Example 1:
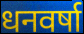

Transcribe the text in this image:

धनवर्षा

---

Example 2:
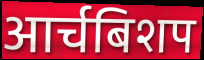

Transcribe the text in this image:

आर्चबिशप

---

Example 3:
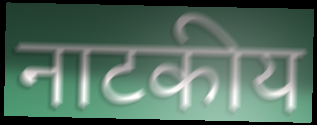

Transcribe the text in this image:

नाटकीय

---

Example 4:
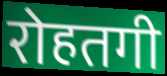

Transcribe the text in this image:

रोहतगी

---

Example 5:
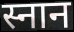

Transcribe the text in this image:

स्नान